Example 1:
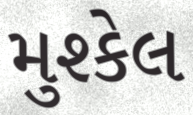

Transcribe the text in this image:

મુશ્કેલ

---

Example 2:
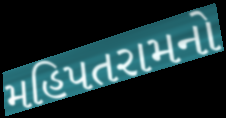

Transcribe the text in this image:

મહિપતરામનો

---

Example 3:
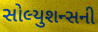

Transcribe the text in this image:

સોલ્યુશન્સની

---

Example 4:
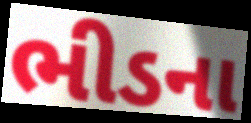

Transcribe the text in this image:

ભીડના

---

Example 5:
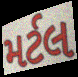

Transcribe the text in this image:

મર્ટલ